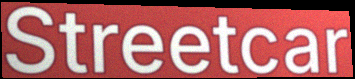
Streetcar